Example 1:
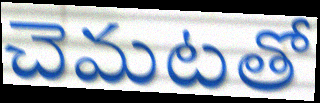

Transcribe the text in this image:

చెమటతో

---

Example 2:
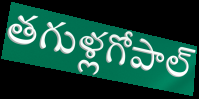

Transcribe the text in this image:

తగుళ్లగోపాల్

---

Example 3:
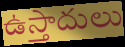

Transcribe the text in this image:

ఉస్తాదులు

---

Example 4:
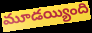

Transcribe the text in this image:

మూడయ్యింది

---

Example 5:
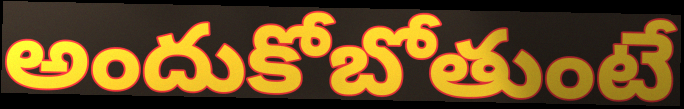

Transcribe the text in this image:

అందుకోబోతుంటే